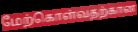
மேற்கொள்வதற்கான